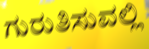
ಗುರುತಿಸುವಲ್ಲಿ